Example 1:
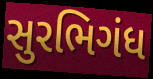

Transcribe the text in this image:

સુરભિગંધ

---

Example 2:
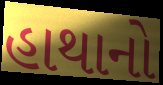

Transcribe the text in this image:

હાથાનો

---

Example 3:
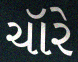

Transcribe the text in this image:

ચૉરે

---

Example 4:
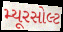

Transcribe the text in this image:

મ્યૂરસોલ્ટ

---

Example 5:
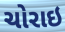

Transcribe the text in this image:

ચોરાઇ